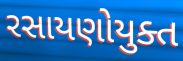
રસાયણોયુક્ત